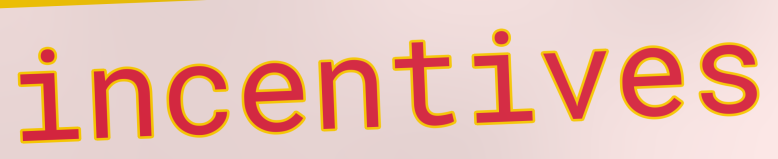
incentives